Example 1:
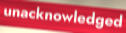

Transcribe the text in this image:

unacknowledged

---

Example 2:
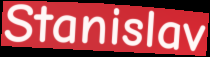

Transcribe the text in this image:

Stanislav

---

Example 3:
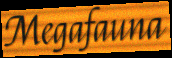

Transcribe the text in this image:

Megafauna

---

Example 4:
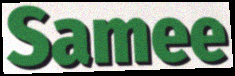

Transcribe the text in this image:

Samee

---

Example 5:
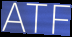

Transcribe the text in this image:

ATF